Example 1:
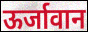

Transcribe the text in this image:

ऊर्जावान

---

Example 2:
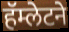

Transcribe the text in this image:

हॅम्लेटने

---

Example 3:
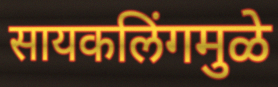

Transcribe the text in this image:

सायकलिंगमुळे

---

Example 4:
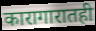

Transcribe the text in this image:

कारागारातही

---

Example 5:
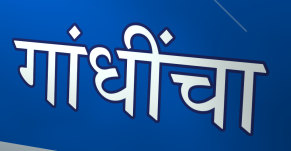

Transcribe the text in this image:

गांधींचा